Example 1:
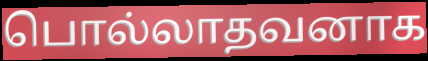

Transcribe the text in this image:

பொல்லாதவனாக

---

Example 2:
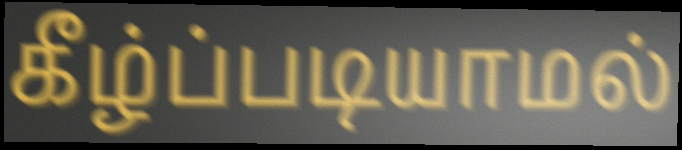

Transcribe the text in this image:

கீழ்ப்படியாமல்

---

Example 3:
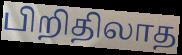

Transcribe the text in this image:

பிறிதிலாத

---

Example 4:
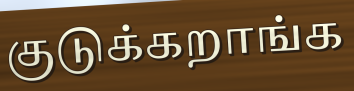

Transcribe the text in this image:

குடுக்கறாங்க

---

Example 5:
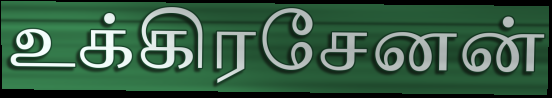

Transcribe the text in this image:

உக்கிரசேனன்